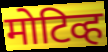
मोटिव्ह